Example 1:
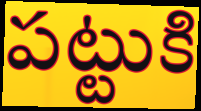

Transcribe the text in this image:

పట్టుకి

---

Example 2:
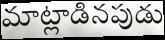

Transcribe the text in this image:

మాట్లాడినపుడు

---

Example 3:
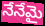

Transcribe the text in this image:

నేనేమై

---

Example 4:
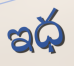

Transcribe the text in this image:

ఇధ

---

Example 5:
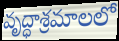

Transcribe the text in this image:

వృద్ధాశ్రమాలలో